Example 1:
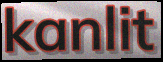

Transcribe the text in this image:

kanlit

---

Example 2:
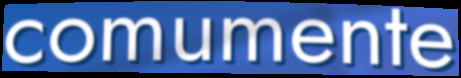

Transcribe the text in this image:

comumente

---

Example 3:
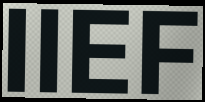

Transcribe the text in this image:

IIEF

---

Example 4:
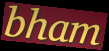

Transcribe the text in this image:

bham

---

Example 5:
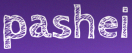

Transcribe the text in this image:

pashei